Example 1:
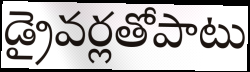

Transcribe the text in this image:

డ్రైవర్లతోపాటు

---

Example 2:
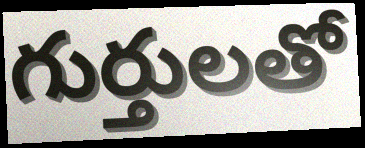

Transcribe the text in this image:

గుర్తులతో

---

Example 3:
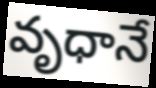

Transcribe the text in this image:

వృధానే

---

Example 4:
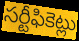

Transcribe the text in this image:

సర్టీఫికెట్లు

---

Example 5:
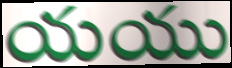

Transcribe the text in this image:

యయు